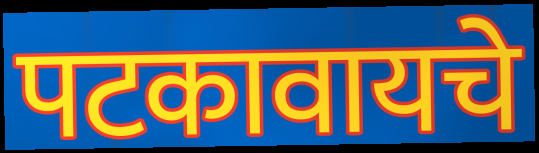
पटकावायचे